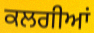
ਕਲਗੀਆਂ